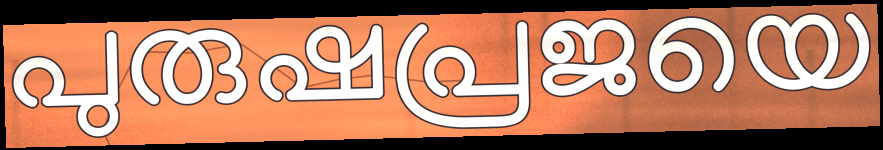
പുരുഷപ്രജയെ